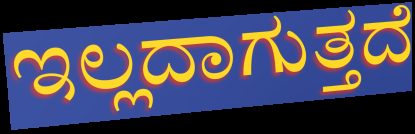
ಇಲ್ಲದಾಗುತ್ತದೆ